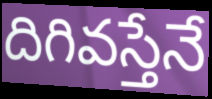
దిగివస్తేనే